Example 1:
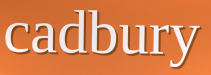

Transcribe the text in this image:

cadbury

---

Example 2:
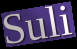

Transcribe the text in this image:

Suli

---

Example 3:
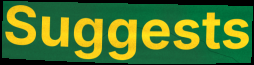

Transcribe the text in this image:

Suggests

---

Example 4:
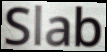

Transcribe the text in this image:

Slab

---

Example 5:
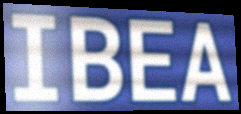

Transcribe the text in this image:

IBEA